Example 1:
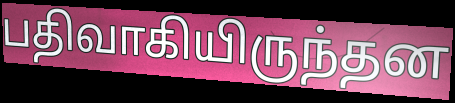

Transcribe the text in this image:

பதிவாகியிருந்தன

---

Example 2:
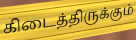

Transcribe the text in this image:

கிடைத்திருக்கும்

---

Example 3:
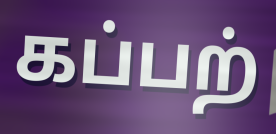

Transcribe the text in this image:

கப்பற்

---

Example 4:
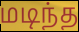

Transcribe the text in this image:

மடிந்த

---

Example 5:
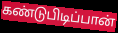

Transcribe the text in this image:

கண்டுபிடிப்பான்